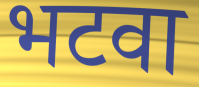
भटवा